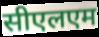
सीएलएम